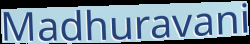
Madhuravani